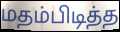
மதம்பிடித்த